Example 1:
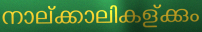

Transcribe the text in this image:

നാല്ക്കാലികള്ക്കും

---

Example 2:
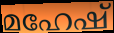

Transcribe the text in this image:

മഹേഷ്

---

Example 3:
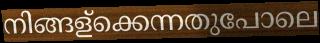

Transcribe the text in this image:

നിങ്ങള്ക്കെന്നതുപോലെ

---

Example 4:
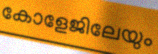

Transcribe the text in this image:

കോളേജിലേയും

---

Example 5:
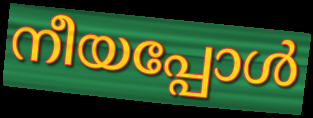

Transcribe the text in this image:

നീയപ്പോൾ